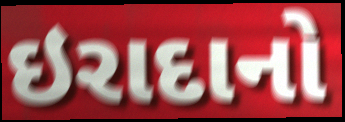
ઇરાદાનો